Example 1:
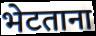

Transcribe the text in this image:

भेटताना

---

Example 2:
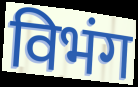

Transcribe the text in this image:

विभंग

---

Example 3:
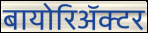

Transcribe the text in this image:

बायोरिॲक्टर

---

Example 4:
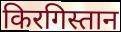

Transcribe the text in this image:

किरगिस्तान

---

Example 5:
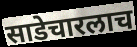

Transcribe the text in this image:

साडेचारलाच